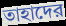
তাহাদের